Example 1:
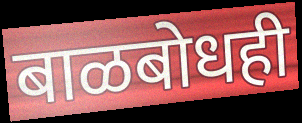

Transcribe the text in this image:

बाळबोधही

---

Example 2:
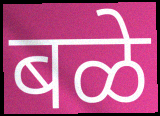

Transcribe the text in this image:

बळे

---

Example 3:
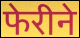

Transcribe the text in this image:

फेरीने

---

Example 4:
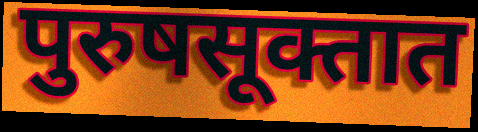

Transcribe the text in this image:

पुरुषसूक्तात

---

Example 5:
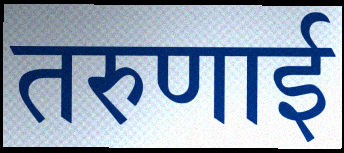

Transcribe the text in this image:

तरुणाई